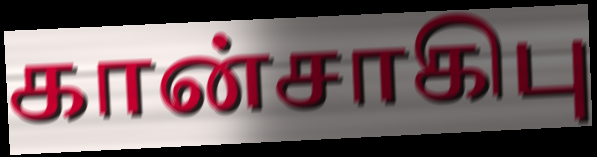
கான்சாகிபு